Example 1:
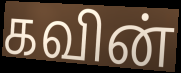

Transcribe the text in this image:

கவின்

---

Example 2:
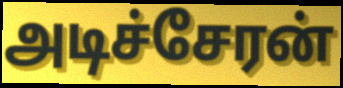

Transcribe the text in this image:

அடிச்சேரன்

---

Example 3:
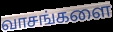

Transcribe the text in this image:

வாசங்களை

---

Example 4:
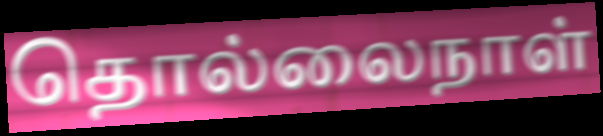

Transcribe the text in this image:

தொல்லைநாள்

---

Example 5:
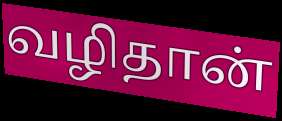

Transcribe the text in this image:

வழிதான்